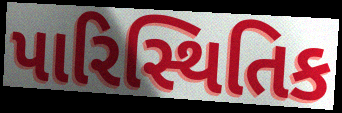
પારિસ્થિતિક